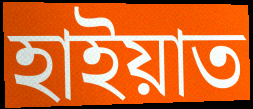
হাইয়াত